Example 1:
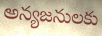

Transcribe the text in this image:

అన్యజనులకు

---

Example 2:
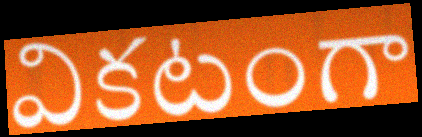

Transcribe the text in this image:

వికటంగా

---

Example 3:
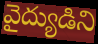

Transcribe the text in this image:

వైద్యుడిని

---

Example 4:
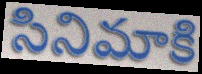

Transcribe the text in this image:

సినిమాకి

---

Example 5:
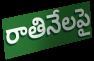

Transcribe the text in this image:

రాతినేలపై